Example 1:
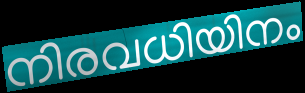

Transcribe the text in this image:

നിരവധിയിനം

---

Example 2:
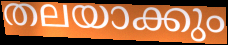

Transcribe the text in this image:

തലയാക്കും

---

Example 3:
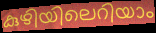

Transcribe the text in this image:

കുഴിയിലെറിയാം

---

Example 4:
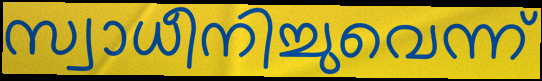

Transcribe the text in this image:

സ്വാധീനിച്ചുവെന്ന്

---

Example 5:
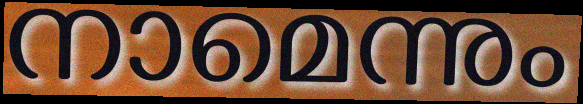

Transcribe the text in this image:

നാമെന്നും